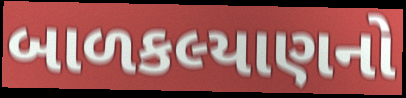
બાળકલ્યાણનો